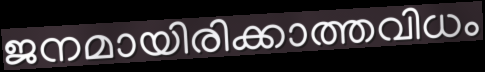
ജനമായിരിക്കാത്തവിധം